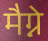
मैग्ने